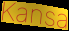
Kansa